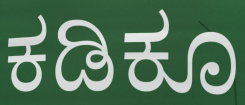
ಕಡಿಕೂ